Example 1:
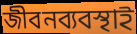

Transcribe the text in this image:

জীবনব্যবস্থাই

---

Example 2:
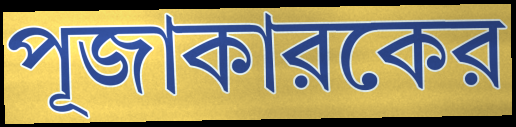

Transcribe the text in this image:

পূজাকারকের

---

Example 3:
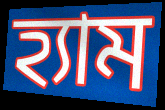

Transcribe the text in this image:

হ্যাম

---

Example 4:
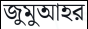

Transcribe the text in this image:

জুমুআহর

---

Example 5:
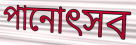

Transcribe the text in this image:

পানোৎসব